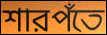
শারপঁতে